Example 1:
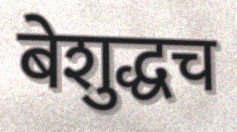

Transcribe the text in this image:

बेशुद्धच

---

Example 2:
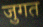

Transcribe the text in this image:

जुगत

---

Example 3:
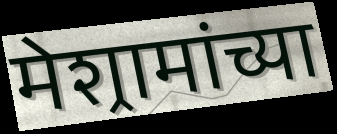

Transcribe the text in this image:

मेश्रामांच्या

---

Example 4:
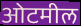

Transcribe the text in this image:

ओटमील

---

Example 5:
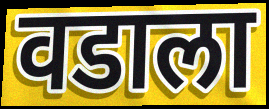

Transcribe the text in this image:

वडाला